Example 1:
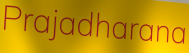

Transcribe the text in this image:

Prajadharana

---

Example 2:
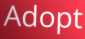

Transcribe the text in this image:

Adopt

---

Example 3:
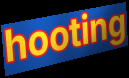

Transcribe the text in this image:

hooting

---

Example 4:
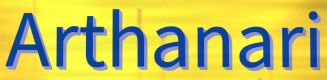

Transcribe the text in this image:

Arthanari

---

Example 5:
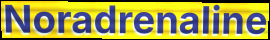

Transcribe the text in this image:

Noradrenaline